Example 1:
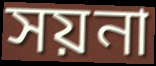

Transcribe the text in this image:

সয়না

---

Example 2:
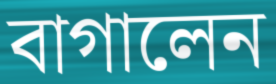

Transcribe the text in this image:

বাগালেন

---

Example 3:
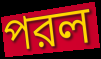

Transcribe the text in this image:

পরল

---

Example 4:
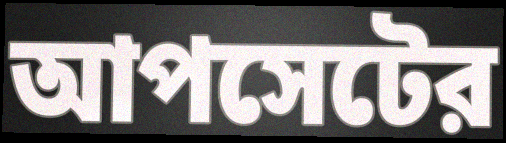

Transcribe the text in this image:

আপসেটের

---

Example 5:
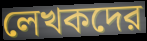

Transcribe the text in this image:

লেখকদের